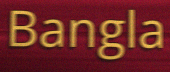
Bangla